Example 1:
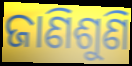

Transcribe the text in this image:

ଜାଣିଶୁଣି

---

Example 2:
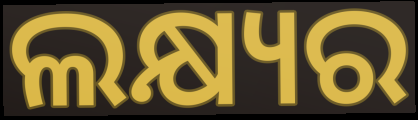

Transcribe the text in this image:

ଲକ୍ଷ୍ୟର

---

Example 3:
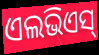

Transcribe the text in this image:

ଏଲଭିଏସ୍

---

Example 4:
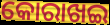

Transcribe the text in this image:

କୋରାଖଇ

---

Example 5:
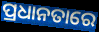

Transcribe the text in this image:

ପ୍ରଧାନତାରେ